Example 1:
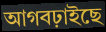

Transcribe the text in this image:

আগবঢ়াইছে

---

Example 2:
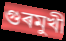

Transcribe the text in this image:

গুৰমুখী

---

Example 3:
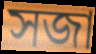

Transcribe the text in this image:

সজা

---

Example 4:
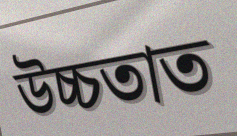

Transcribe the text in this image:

উচ্চতাত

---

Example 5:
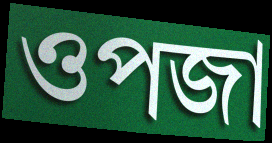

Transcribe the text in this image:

ওপজা